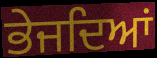
ਭੇਜਦਿਆਂ